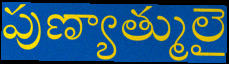
పుణ్యాత్ములై